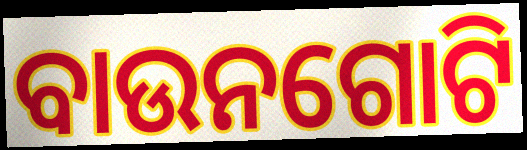
ବାଉନଗୋଟି